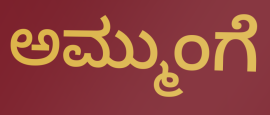
ಅಮ್ಮುಂಗೆ